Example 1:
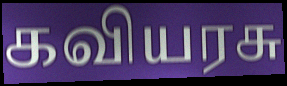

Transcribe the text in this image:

கவியரசு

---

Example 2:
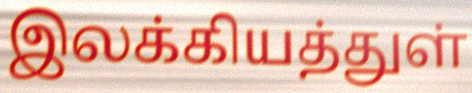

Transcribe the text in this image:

இலக்கியத்துள்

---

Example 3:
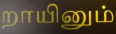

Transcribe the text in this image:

றாயினும்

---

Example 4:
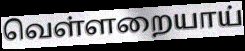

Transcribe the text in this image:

வெள்ளறையாய்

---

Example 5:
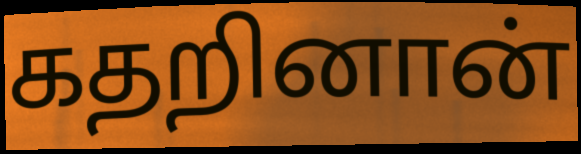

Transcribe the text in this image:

கதறினான்